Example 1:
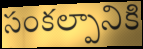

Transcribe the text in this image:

సంకల్పానికి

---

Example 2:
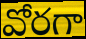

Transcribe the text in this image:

వోరగా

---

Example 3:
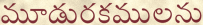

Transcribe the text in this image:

మూడురకములను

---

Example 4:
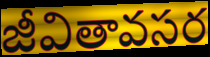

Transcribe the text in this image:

జీవితావసర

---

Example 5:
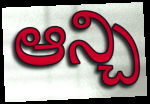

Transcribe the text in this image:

ఆన్చి